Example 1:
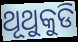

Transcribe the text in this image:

ଥୂଥୁକୁଡି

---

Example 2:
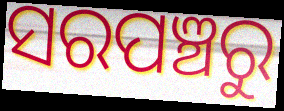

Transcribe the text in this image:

ସରପଞ୍ଚରୁ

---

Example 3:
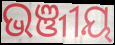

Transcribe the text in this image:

ଭଞ୍ଜୀୟ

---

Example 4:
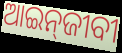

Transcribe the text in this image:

ଆଇନ୍‌ଜୀବୀ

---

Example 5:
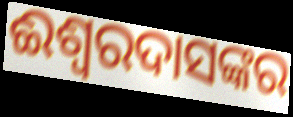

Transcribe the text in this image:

ଈଶ୍ଵରଦାସଙ୍କର